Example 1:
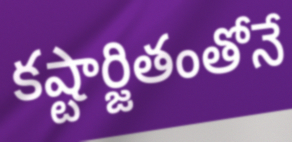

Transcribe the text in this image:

కష్టార్జితంతోనే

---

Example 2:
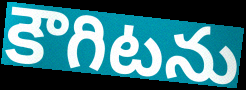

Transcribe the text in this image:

కౌగిటను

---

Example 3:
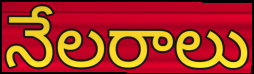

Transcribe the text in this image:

నేలరాలు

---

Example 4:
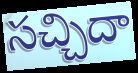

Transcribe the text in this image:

సచ్చిదా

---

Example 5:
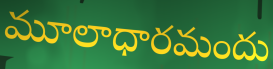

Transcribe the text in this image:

మూలాధారమందు